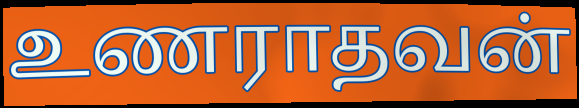
உணராதவன்